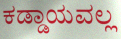
ಕಡ್ಡಾಯವಲ್ಲ